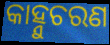
କାହ୍ନୁଚରଣ